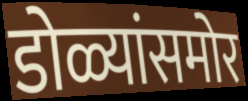
डोळ्यांसमोर